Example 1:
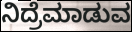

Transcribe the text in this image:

ನಿದ್ರೆಮಾಡುವ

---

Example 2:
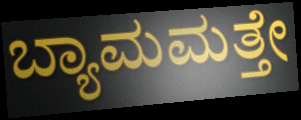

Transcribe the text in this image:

ಬ್ಯಾಮಮತ್ತೇ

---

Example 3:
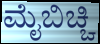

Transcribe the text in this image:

ಮೈಬಿಚ್ಚಿ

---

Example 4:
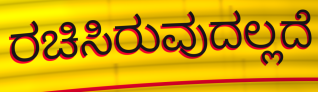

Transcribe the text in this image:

ರಚಿಸಿರುವುದಲ್ಲದೆ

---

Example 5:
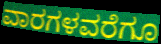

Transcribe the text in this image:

ವಾರಗಳವರೆಗೂ